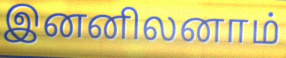
இனனிலனாம்